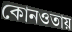
কোনওতায়